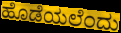
ಹೊಡೆಯಲೆಂದು